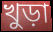
খুড়া